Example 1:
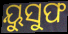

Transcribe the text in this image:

ୟୁସୁଫ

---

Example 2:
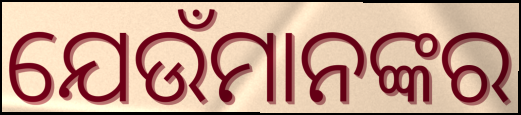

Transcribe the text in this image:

ଯେଉଁମାନଙ୍କର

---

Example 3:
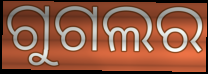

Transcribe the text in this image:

ଗୁଗଲର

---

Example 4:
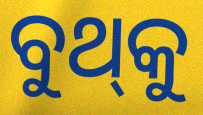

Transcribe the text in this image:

ବୁଥ୍‌କୁ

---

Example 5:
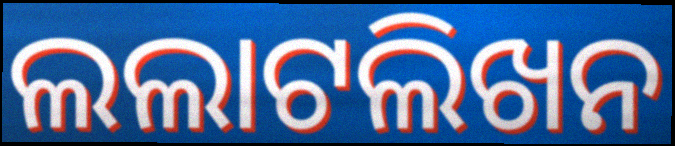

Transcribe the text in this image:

ଲଲାଟଲିଖନ